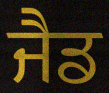
ਜੈਡ